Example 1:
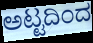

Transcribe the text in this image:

ಅಟ್ಟದಿಂದ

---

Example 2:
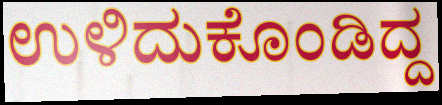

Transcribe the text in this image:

ಉಳಿದುಕೊಂಡಿದ್ದ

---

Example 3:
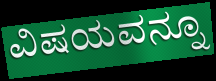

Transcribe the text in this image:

ವಿಷಯವನ್ನೂ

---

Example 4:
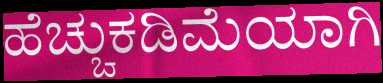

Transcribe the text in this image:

ಹೆಚ್ಚುಕಡಿಮೆಯಾಗಿ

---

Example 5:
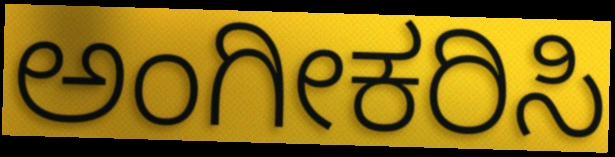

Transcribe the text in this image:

ಅಂಗೀಕರಿಸಿ